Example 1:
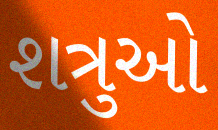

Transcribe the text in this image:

શત્રુઓ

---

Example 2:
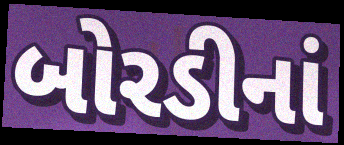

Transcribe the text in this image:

બોરડીનાં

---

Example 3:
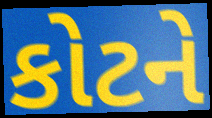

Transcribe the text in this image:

કોટને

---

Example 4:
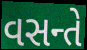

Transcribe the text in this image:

વસન્તે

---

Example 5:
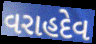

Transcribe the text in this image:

વરાહદેવ